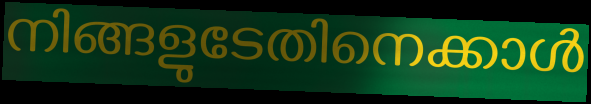
നിങ്ങളുടേതിനെക്കാൾ